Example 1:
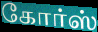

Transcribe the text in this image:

கோர்ஸ்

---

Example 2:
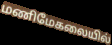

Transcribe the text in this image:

மணிமேகலையில்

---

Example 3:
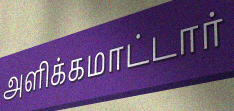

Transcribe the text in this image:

அளிக்கமாட்டார்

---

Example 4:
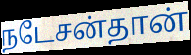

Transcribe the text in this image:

நடேசன்தான்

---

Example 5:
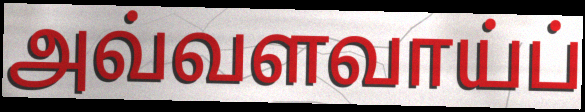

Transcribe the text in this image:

அவ்வளவாய்ப்